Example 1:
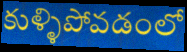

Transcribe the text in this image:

కుళ్ళిపోవడంలో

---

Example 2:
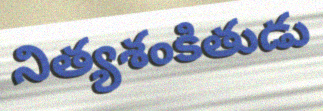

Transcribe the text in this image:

నిత్యశంకితుడు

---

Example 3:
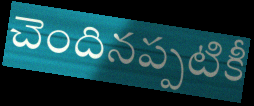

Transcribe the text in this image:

చెందినప్పటికీ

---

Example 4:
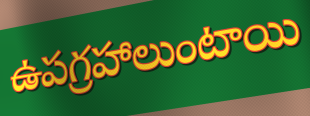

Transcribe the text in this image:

ఉపగ్రహాలుంటాయి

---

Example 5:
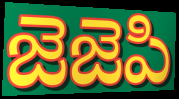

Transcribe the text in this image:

జెజెపి